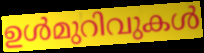
ഉൾമുറിവുകൾ